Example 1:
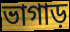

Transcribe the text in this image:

ভাগাড়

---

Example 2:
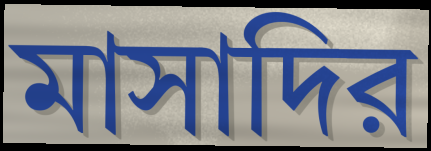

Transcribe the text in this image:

মাসাদির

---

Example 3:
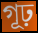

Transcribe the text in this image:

গূঢ়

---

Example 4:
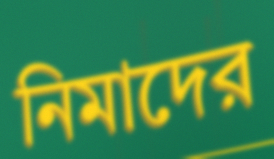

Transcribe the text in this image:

নিমাদের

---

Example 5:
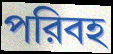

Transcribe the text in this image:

পরিবহ